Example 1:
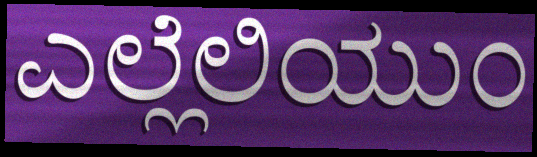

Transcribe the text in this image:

ಎಲ್ಲೆಲಿಯುಂ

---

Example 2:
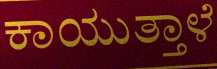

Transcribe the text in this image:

ಕಾಯುತ್ತಾಳೆ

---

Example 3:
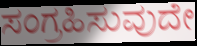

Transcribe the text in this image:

ಸಂಗ್ರಹಿಸುವುದೇ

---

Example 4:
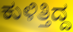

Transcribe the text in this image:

ಕುಳಿತ್ತಿದ್ದ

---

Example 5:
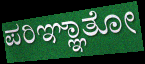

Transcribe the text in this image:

ಪರಿಞ್ಞಾತೋ